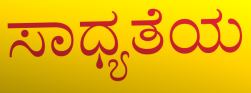
ಸಾಧ್ಯತೆಯ